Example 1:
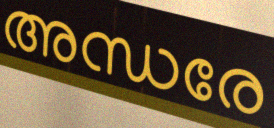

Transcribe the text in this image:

അന്ധരേ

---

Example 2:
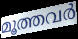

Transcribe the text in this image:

മൂത്തവർ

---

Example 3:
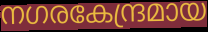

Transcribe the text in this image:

നഗരകേന്ദ്രമായ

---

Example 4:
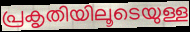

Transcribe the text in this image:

പ്രകൃതിയിലൂടെയുള്ള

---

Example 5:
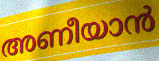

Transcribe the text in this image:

അണീയാൻ